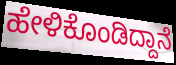
ಹೇಳಿಕೊಂಡಿದ್ದಾನೆ